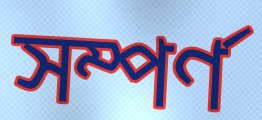
সম্পর্ণ